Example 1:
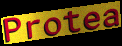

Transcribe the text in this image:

Protea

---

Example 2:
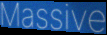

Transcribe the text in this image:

Massive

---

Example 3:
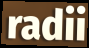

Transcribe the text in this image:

radii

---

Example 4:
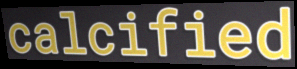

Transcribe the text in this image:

calcified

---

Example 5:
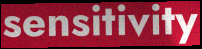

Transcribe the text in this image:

sensitivity